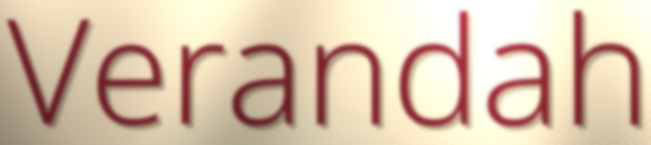
Verandah